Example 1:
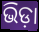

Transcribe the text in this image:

ଭିଡ଼ା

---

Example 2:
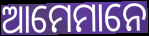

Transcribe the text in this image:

ଆମେମାନେ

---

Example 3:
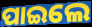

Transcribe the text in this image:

ପାଇଲେ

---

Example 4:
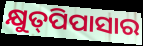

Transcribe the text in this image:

କ୍ଷୁତ୍‌ପିପାସାର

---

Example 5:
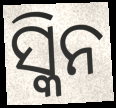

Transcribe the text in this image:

ସ୍କିନ